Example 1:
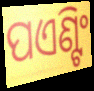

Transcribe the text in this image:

ପଏଣ୍ଟିଂ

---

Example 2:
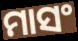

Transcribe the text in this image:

ମାସଂ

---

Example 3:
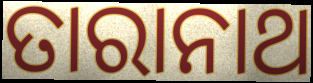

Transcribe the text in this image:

ତାରାନାଥ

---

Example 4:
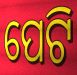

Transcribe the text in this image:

ପେଟି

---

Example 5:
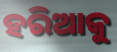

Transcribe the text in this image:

ହରିଆକୁ